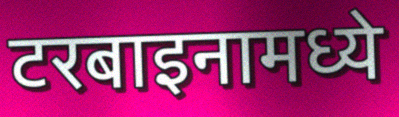
टरबाइनामध्ये